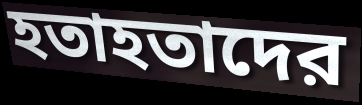
হতাহতাদের